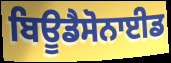
ਬਿਊਡੈਸੋਨਾਈਡ